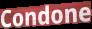
Condone